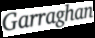
Garraghan